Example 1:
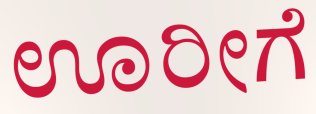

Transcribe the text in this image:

ಊರೀಗೆ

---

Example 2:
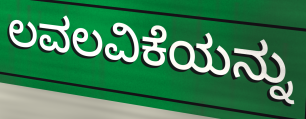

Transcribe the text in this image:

ಲವಲವಿಕೆಯನ್ನು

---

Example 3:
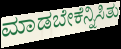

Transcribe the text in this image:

ಮಾಡಬೇಕೆನ್ನಿಸಿತು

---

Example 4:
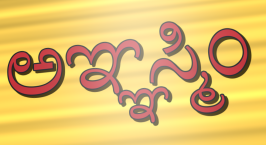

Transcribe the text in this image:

ಅಞ್ಞಸ್ಮಿಂ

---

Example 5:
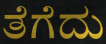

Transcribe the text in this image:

ತೆಗೆದು